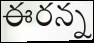
ఈరన్న